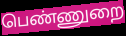
பெண்ணுறை